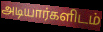
அடியார்களிடம்